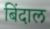
बिंदाल